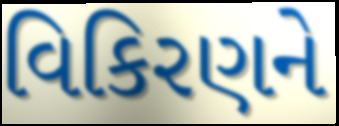
વિકિરણને